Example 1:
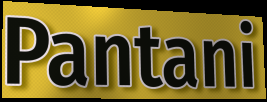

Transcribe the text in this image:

Pantani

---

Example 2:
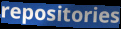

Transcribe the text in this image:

repositories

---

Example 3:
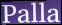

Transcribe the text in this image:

Palla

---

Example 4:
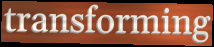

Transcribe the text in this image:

transforming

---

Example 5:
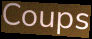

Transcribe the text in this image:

Coups